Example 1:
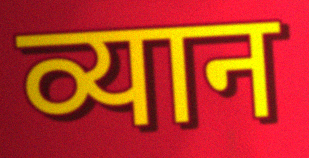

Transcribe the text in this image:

व्यान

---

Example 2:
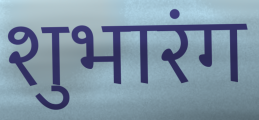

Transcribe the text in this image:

शुभारंग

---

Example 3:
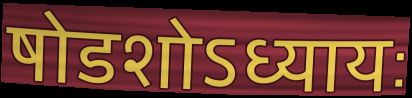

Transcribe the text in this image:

षोडशोऽध्यायः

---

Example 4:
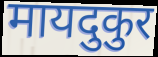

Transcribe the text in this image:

मायदुकुर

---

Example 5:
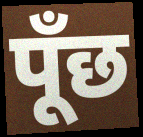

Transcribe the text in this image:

पूँछ